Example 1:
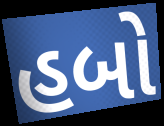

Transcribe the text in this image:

હબો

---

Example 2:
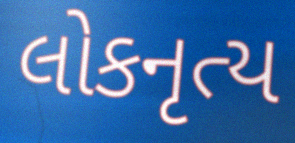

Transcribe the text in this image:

લોકનૃત્ય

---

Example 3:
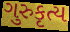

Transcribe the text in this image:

ગુરુકૃત્ય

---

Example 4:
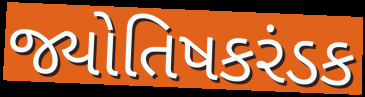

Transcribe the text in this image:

જ્યોતિષકરંડક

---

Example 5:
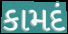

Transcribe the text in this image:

કામદં